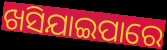
ଖସିଯାଇପାରେ